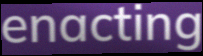
enacting